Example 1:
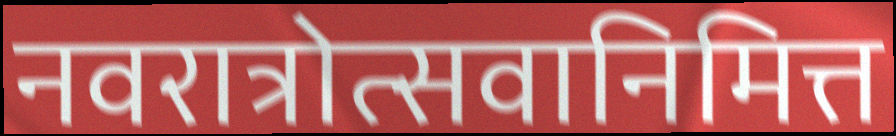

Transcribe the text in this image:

नवरात्रोत्सवानिमित्त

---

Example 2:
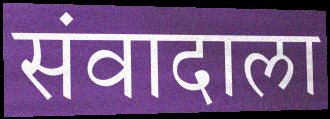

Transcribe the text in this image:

संवादाला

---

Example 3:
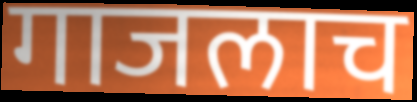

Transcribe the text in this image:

गाजलाच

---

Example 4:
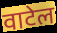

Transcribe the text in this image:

वाटेल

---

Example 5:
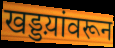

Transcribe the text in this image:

खड्डय़ांवरून